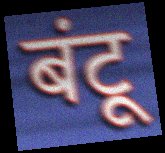
बंटू